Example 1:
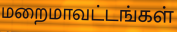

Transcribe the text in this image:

மறைமாவட்டங்கள்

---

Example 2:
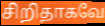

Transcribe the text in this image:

சிறிதாகவே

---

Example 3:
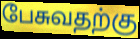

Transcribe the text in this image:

பேசுவதற்கு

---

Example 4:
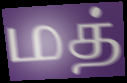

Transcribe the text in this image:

மத்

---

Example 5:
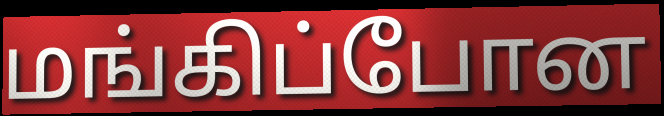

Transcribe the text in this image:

மங்கிப்போன